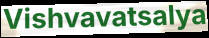
Vishvavatsalya